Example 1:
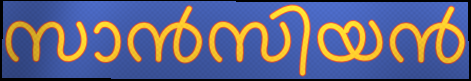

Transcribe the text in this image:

സാൻസിയൻ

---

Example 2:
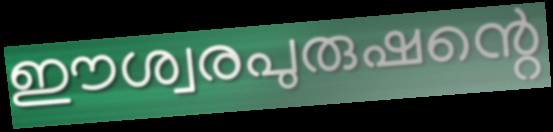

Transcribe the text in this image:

ഈശ്വരപുരുഷന്റെ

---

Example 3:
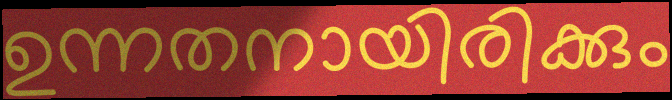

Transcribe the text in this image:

ഉന്നതനായിരിക്കും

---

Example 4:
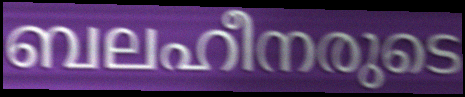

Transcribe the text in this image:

ബലഹീനരുടെ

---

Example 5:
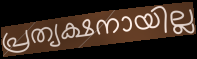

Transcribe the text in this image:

പ്രത്യക്ഷനായില്ല